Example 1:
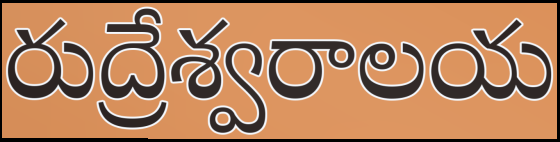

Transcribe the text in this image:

రుద్రేశ్వరాలయ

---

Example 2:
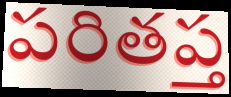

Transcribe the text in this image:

పరితప్త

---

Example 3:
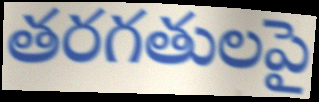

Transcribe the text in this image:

తరగతులపై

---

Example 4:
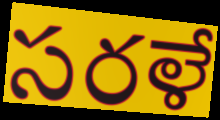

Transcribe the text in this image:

సరళే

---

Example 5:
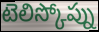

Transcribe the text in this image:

టెలిస్కోప్ను